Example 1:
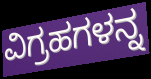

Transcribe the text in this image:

ವಿಗ್ರಹಗಳನ್ನ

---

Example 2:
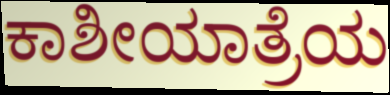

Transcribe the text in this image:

ಕಾಶೀಯಾತ್ರೆಯ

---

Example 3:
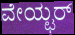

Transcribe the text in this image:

ವೇಯ್ಟರ್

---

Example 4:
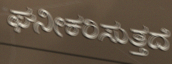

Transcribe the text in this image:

ಘನೀಕರಿಸುತ್ತದೆ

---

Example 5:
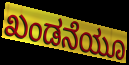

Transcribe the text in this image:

ಖಂಡನೆಯೂ